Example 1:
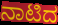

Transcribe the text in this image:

ನಾಟಿದ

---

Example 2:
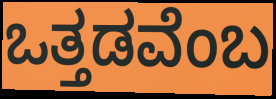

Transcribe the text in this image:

ಒತ್ತಡವೆಂಬ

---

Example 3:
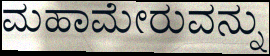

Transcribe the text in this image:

ಮಹಾಮೇರುವನ್ನು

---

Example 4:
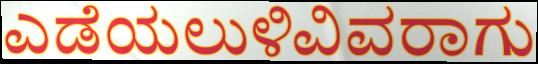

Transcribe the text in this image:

ಎಡೆಯಲುಳಿವಿವರಾಗು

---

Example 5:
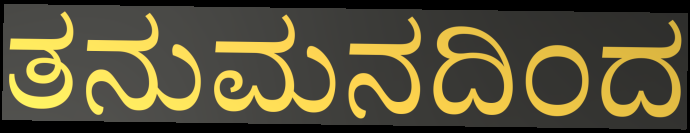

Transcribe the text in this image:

ತನುಮನದಿಂದ